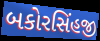
બકોરસિંહજી